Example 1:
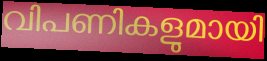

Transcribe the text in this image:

വിപണികളുമായി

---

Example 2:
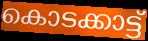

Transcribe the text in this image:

കൊടക്കാട്ട്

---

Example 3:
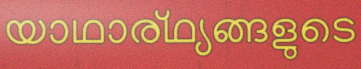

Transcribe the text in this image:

യാഥാര്ഥ്യങ്ങളുടെ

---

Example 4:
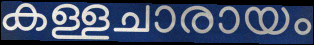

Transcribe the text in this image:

കള്ളചാരായം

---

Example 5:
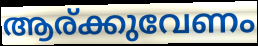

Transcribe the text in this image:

ആര്ക്കുവേണം